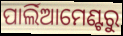
ପାର୍ଲିଆମେଣ୍ଟରୁ